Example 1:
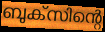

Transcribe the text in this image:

ബുക്‌സിന്റെ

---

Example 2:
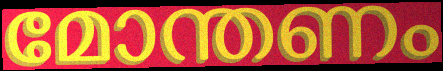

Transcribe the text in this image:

മോന്തണം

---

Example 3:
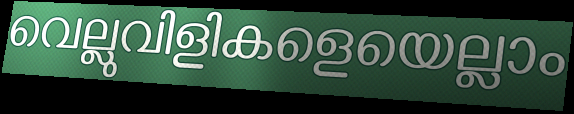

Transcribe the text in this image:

വെല്ലുവിളികളെയെല്ലാം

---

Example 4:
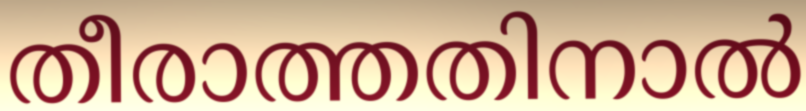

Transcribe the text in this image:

തീരാത്തതിനാൽ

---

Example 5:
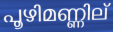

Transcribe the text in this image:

പൂഴിമണ്ണില്